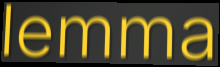
lemma